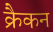
क्रैकन